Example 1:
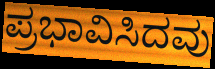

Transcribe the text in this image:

ಪ್ರಭಾವಿಸಿದವು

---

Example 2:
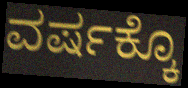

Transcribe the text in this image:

ವರ್ಷಕ್ಕೊ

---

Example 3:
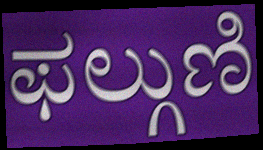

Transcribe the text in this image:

ಫಲ್ಗುಣಿ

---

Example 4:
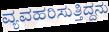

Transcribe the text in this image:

ವ್ಯವಹರಿಸುತ್ತಿದ್ದನು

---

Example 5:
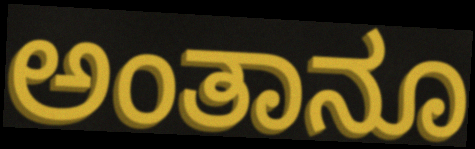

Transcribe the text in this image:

ಅಂತಾನೂ